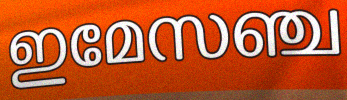
ഇമേസഞ്ച